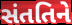
સંતતિને